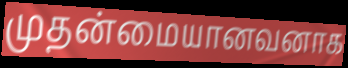
முதன்மையானவனாக